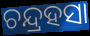
ଚନ୍ଦ୍ରହସା